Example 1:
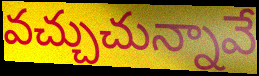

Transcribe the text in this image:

వచ్చుచున్నావే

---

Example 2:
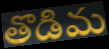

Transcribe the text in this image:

తొడిమ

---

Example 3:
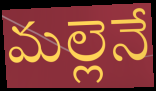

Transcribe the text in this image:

మల్లెనే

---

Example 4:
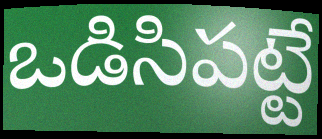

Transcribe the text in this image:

ఒడిసిపట్టే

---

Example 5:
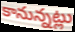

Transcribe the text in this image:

కానున్నట్లు